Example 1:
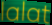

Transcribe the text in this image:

lalat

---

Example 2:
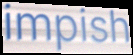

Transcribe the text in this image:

impish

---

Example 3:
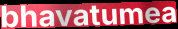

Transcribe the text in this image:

bhavatumea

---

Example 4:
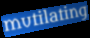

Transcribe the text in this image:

mutilating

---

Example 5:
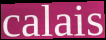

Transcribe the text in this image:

calais